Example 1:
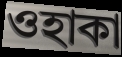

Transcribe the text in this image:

ওহাকা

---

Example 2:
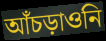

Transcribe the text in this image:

আঁচড়াওনি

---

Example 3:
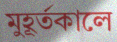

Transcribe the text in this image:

মুহূর্তকালে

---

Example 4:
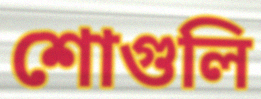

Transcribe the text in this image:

শোগুলি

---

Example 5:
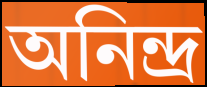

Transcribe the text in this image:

অনিন্দ্র